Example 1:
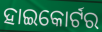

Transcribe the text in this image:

ହାଇକୋର୍ଟର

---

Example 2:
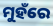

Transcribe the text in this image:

ମୁହଁରେ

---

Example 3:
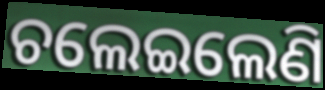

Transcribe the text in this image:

ଚଲେଇଲେଣି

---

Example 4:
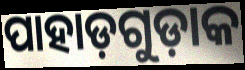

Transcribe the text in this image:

ପାହାଡ଼ଗୁଡ଼ାକ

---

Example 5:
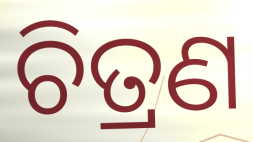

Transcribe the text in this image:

ଚିତ୍ରଣ